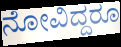
ನೋವಿದ್ದರೂ